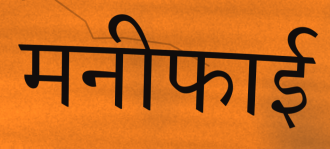
मनीफाई